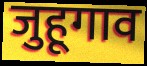
जुहूगाव